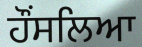
ਹੌਂਸਲਿਆ